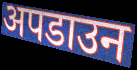
अपडाउन